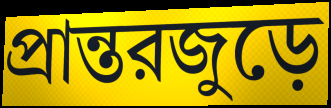
প্রান্তরজুড়ে